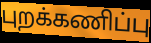
புறக்கணிப்பு